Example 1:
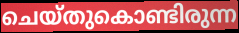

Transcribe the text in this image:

ചെയ്തുകൊണ്ടിരുന്ന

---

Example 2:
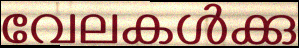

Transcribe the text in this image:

വേലകൾക്കു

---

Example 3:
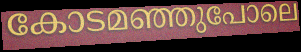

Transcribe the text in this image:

കോടമഞ്ഞുപോലെ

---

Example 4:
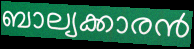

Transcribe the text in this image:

ബാല്യക്കാരൻ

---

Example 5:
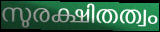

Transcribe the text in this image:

സുരക്ഷിതത്വം